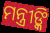
ମନ୍ତ୍ରୀଙ୍କି